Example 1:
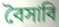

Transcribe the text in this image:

বৈসাবি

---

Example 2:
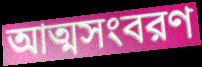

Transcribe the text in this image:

আত্মসংবরণ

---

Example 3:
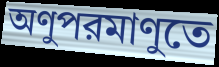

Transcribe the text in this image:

অণুপরমাণুতে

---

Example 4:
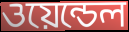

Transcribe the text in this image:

ওয়েন্ডেল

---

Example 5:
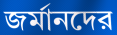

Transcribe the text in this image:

জর্মানদের